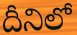
దీనిలో